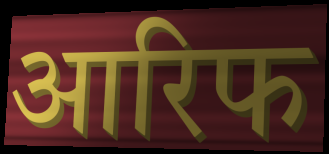
आरिफ